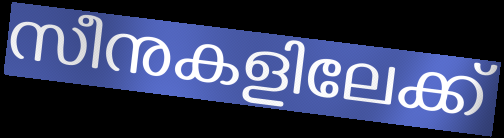
സീനുകളിലേക്ക്